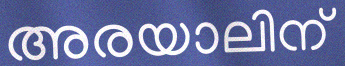
അരയാലിന്